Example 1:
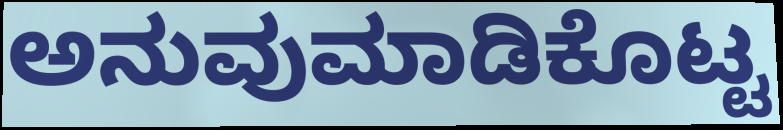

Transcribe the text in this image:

ಅನುವುಮಾಡಿಕೊಟ್ಟ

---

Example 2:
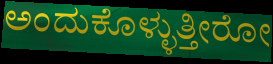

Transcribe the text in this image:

ಅಂದುಕೊಳ್ಳುತ್ತೀರೋ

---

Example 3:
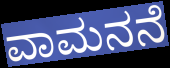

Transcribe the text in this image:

ವಾಮನನೆ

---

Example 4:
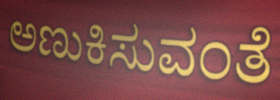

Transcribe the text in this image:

ಅಣುಕಿಸುವಂತೆ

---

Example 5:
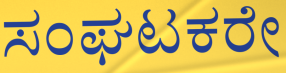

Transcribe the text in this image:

ಸಂಘಟಕರೇ